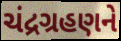
ચંદ્રગ્રહણને